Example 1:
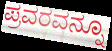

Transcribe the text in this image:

ಪ್ರವರವನ್ನೂ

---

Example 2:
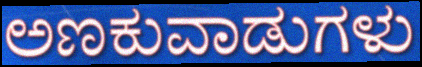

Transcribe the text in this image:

ಅಣಕುವಾಡುಗಳು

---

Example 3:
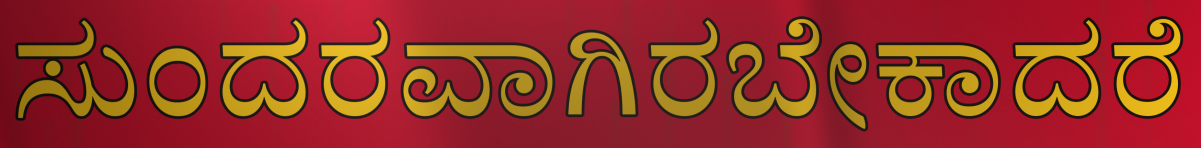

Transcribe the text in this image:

ಸುಂದರವಾಗಿರಬೇಕಾದರೆ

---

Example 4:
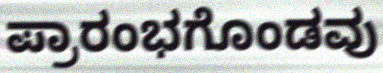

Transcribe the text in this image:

ಪ್ರಾರಂಭಗೊಂಡವು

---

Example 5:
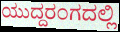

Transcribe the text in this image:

ಯುದ್ದರಂಗದಲ್ಲಿ